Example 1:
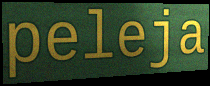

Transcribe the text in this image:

peleja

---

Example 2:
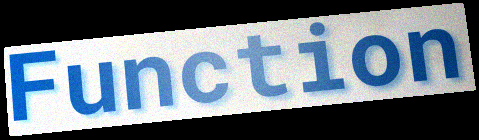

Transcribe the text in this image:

Function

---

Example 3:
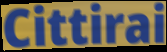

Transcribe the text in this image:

Cittirai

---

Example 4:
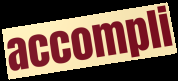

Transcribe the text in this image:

accompli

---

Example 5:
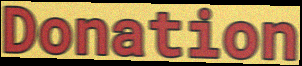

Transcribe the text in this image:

Donation